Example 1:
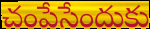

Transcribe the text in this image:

చంపేసేందుకు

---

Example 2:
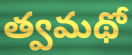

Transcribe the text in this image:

త్వమథో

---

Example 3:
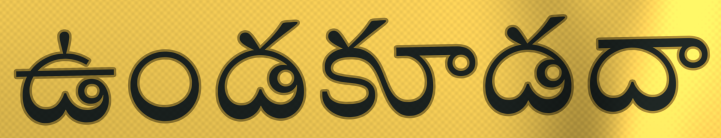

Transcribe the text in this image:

ఉండకూడదా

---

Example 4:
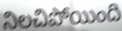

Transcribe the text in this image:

నిలచిపోయింది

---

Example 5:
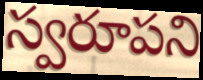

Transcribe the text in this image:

స్వరూపని